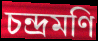
চন্দ্রমণি